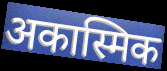
अकास्मिक